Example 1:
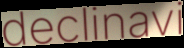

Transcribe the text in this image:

declinavi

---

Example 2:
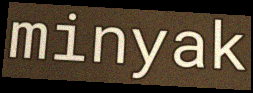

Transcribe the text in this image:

minyak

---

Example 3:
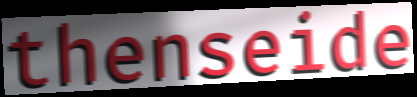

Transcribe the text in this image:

thenseide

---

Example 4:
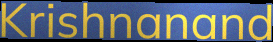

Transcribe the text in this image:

Krishnanand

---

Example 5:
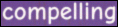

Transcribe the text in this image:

compelling